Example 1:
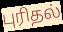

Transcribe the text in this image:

புரிதல்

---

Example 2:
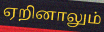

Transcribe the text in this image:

ஏறினாலும்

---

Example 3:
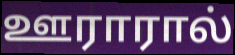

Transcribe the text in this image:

ஊராரால்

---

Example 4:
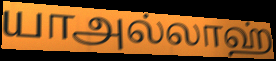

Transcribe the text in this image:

யாஅல்லாஹ்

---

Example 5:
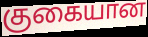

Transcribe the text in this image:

குகையான